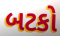
બટકો